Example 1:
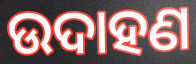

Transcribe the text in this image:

ଉଦାହଣ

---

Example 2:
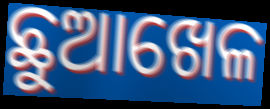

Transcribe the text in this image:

ଛୁଆଖେଳ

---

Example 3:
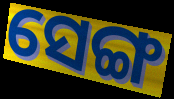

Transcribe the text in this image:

ସେଙ୍ଗ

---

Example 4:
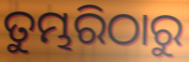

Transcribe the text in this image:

ତୁମ୍ଭରିଠାରୁ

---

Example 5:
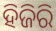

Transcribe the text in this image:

ହିଜିରି